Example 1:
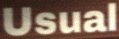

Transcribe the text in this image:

Usual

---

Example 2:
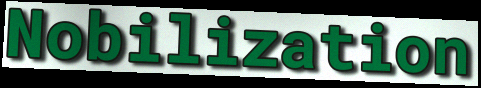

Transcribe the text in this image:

Nobilization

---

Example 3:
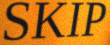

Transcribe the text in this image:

SKIP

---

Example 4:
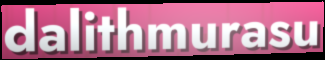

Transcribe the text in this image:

dalithmurasu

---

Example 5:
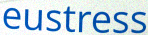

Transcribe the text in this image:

eustress